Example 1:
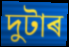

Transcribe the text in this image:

দুটাৰ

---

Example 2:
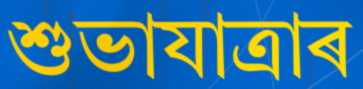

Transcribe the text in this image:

শুভাযাত্ৰাৰ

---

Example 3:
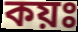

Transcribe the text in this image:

কয়ঃ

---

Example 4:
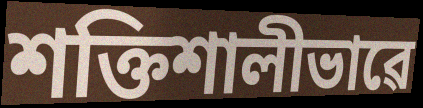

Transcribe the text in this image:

শক্তিশালীভাৱে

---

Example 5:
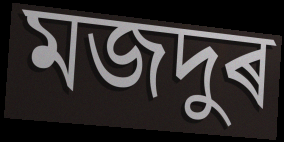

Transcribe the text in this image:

মজদুৰ